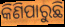
କିଣିପାରୁଛି